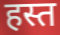
हस्त